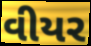
વીયર